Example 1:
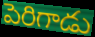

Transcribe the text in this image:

పెరిగాడు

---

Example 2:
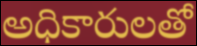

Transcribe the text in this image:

అధికారులతో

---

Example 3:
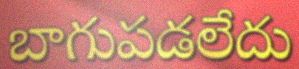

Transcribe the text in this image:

బాగుపడలేదు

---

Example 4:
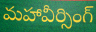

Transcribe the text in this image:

మహావీర్సింగ్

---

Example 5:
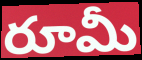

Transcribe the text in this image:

రూమీ